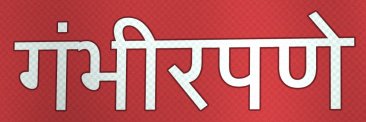
गंभीरपणे